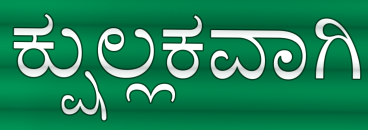
ಕ್ಷುಲ್ಲಕವಾಗಿ